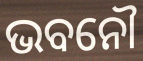
ଭବନୌ